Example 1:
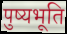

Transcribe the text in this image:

पुष्यभूति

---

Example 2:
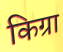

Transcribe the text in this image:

किग्रा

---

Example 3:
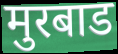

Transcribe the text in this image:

मुरबाड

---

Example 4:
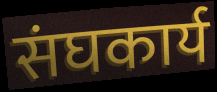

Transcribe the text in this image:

संघकार्य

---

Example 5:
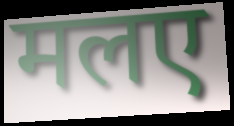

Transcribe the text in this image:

मलए